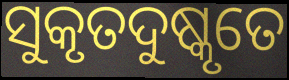
ସୁକୃତଦୁଷ୍କୃତେ